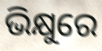
ଭିକ୍ଷୁରେ